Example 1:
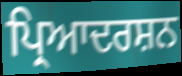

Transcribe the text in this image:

ਪ੍ਰਿਆਦਰਸ਼ਨ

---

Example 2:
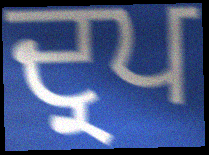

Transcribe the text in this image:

ਦ੍ਰਪ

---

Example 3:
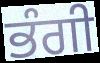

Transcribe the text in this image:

ਭੰਗੀ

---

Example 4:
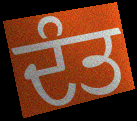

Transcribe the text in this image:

ਦੰਤ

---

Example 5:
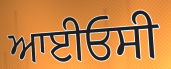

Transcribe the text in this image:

ਆਈਓਸੀ